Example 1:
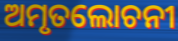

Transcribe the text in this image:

ଅମୃତଲୋଚନୀ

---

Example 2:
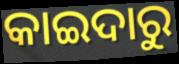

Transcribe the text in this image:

କାଇଦାରୁ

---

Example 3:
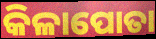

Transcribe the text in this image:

କିଳାପୋତା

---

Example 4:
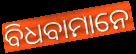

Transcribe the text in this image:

ବିଧବାମାନେ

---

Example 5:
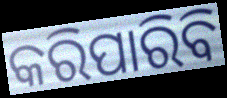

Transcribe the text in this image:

କରିପାରିବି